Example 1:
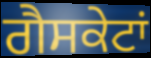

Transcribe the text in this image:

ਗੈਸਕੇਟਾਂ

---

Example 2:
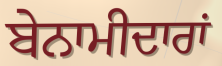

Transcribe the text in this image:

ਬੇਨਾਮੀਦਾਰਾਂ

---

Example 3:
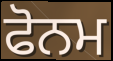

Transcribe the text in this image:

ਫੋਨਮ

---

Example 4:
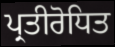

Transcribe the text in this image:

ਪ੍ਰਤੀਰੋਧਿਤ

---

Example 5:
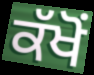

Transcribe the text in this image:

ਕੱਖੋਂ